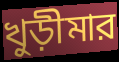
খুড়ীমার